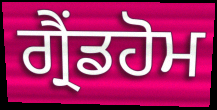
ਗ੍ਰੈਂਡਹੋਮ